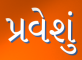
પ્રવેશું